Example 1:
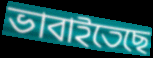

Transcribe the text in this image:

ভাবাইতেছে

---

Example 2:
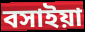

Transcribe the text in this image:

বসাইয়া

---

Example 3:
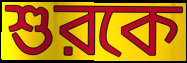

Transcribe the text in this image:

শুরকে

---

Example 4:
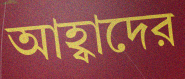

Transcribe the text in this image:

আহ্বাদের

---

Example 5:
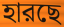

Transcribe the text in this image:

হারছে